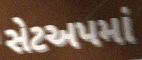
સેટઅપમાં